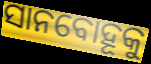
ସାନବୋହୂକୁ